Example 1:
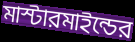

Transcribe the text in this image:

মাস্টারমাইন্ডের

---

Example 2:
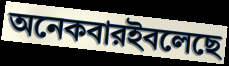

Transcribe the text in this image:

অনেকবারইবলেছে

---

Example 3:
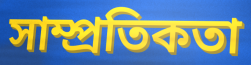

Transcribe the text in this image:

সাম্প্রতিকতা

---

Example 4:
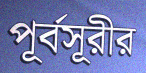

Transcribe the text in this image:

পূর্বসূরীর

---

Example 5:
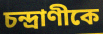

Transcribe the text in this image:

চন্দ্রাণীকে